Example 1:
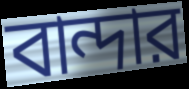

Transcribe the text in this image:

বান্দার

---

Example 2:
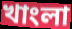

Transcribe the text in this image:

খাংলা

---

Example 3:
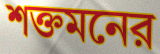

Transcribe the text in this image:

শক্তমনের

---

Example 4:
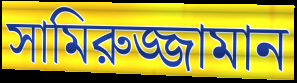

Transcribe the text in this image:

সামিরুজ্জামান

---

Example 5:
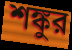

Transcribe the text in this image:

শঙ্কুর